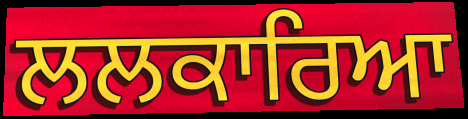
ਲਲਕਾਰਿਆ